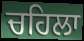
ਚਹਿਲਾ